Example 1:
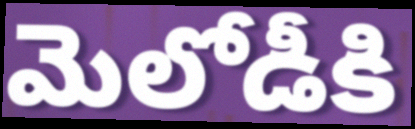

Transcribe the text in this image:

మెలోడీకి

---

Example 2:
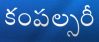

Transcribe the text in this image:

కంపల్సరీ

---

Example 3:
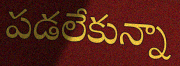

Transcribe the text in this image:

పడలేకున్నా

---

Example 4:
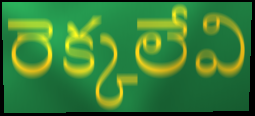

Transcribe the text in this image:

రెక్కలేవి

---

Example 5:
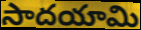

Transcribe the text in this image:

సాదయామి